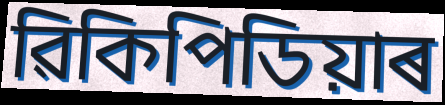
ৱিকিপিডিয়াৰ